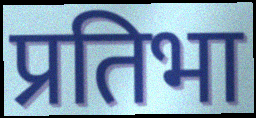
प्रतिभा